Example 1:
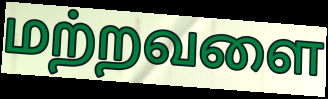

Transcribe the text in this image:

மற்றவளை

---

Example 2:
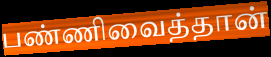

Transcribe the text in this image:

பண்ணிவைத்தான்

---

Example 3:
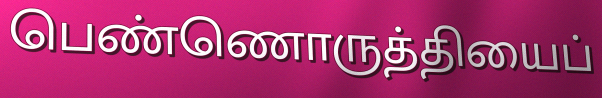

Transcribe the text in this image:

பெண்ணொருத்தியைப்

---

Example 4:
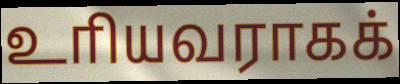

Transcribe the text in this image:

உரியவராகக்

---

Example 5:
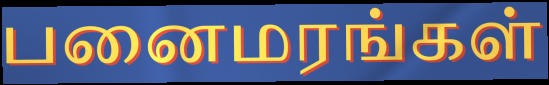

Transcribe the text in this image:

பனைமரங்கள்